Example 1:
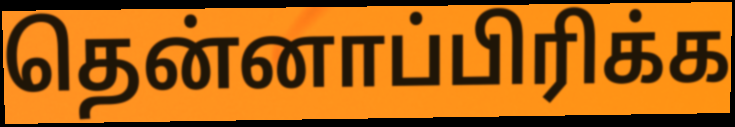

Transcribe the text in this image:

தென்னாப்பிரிக்க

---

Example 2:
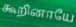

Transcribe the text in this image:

கூறினாயே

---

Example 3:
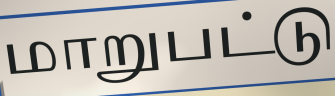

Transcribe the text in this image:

மாறுபட்டு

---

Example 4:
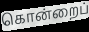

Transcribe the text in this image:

கொன்றைப்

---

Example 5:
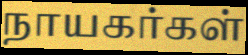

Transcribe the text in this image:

நாயகர்கள்